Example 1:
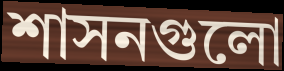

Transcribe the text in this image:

শাসনগুলো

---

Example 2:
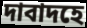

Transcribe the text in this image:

দাবাদহে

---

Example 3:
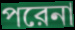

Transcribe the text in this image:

পরেনা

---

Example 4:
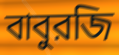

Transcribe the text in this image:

বাবুরজি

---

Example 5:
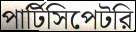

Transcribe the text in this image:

পার্টিসিপেটরি